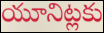
యూనిట్లకు